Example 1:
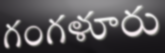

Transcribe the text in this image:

గంగళూరు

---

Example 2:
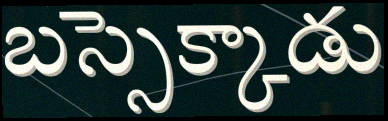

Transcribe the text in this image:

బస్సెక్కాడు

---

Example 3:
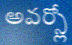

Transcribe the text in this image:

అవర్స్లో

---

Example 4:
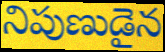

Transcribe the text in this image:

నిపుణుడైన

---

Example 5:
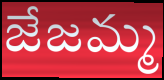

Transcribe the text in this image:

జేజమ్మ